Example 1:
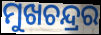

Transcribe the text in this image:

ମୁଖଚନ୍ଦ୍ରର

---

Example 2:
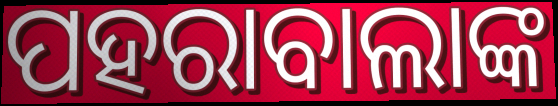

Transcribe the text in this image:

ପହରାବାଲାଙ୍କ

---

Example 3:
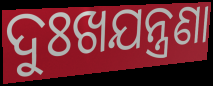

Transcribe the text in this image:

ଦୁଃଖଯନ୍ତ୍ରଣା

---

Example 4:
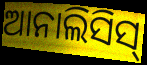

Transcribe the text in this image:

ଆନାଲିସିସ୍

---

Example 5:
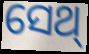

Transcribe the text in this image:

ସେଥ୍